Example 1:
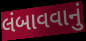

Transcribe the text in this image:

લંબાવવાનું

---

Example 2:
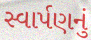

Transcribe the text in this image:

સ્વાર્પણનું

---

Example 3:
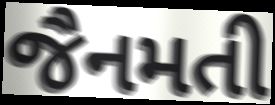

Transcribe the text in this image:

જૈનમતી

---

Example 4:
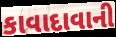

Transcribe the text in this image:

કાવાદાવાની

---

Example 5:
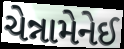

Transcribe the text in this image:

ચેન્નામેનેઈ